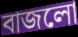
বাজলো